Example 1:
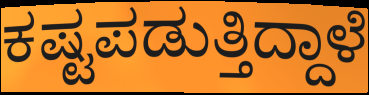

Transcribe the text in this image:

ಕಷ್ಟಪಡುತ್ತಿದ್ದಾಳೆ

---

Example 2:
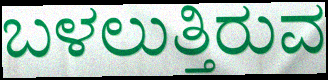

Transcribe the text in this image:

ಬಳಲುತ್ತಿರುವ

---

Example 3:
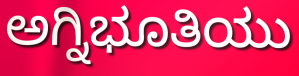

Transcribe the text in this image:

ಅಗ್ನಿಭೂತಿಯು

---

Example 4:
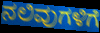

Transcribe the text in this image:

ನಲಿವುಗಳಿಗೆ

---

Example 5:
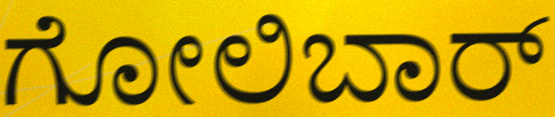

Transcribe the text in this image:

ಗೋಲಿಬಾರ್